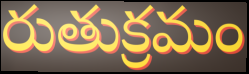
రుతుక్రమం